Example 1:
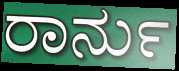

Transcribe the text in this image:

ರಾರ್ನು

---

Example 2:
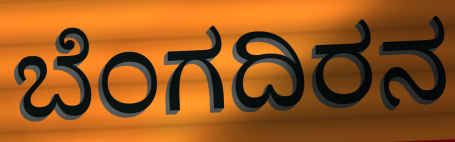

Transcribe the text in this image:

ಬೆಂಗದಿರನ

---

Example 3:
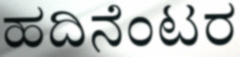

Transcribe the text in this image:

ಹದಿನೆಂಟರ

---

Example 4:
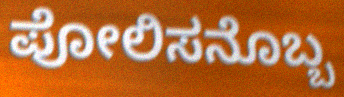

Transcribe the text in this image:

ಪೋಲಿಸನೊಬ್ಬ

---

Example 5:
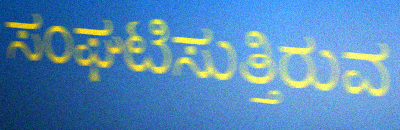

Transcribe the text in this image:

ಸಂಘಟಿಸುತ್ತಿರುವ